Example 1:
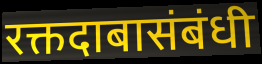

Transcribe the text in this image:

रक्तदाबासंबंधी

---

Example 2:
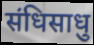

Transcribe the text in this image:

संधिसाधु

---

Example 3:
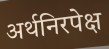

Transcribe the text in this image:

अर्थनिरपेक्ष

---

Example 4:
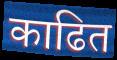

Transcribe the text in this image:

काढित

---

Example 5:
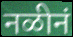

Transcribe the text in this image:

नळीनं